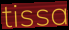
tissa